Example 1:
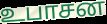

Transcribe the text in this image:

உபாசன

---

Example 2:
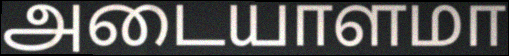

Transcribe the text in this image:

அடையாளமா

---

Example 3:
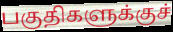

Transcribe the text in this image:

பகுதிகளுக்குச்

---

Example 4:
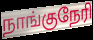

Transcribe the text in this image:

நாங்குநேரி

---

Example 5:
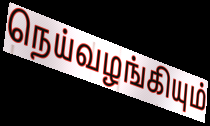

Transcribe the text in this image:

நெய்வழங்கியும்